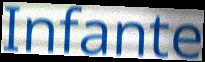
Infante